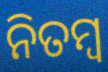
ନିତମ୍ବ